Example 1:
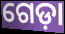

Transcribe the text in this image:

ଗେଡ଼ା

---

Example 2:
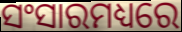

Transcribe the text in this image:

ସଂସାରମଧ୍ୟରେ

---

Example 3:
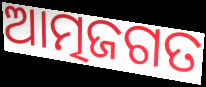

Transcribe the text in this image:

ଆତ୍ମଜଗତ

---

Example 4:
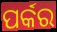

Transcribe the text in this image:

ପର୍କର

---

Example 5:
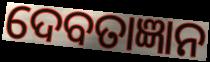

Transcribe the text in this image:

ଦେବତାଜ୍ଞାନ